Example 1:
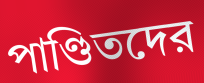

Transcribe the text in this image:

পাণ্ডিতদের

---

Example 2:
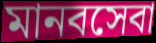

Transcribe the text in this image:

মানবসেবা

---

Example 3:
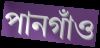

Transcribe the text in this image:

পানগাঁও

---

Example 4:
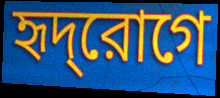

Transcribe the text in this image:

হৃদ্‌রোগে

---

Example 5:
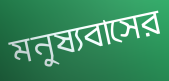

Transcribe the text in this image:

মনুষ্যবাসের